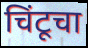
चिंटूचा